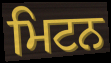
ਮਿਟਨ